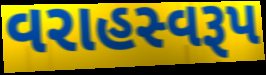
વરાહસ્વરૂપ